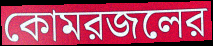
কোমরজলের